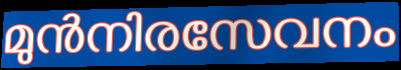
മുൻനിരസേവനം